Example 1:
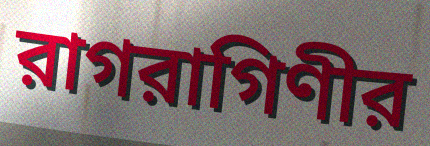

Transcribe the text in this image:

রাগরাগিণীর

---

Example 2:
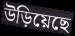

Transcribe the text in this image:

উড়িয়েছে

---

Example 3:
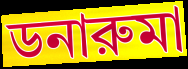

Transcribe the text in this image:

ডনারুমা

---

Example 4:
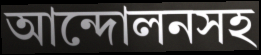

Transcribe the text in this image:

আন্দোলনসহ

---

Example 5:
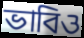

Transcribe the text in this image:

ভাবিও